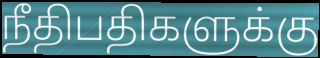
நீதிபதிகளுக்கு